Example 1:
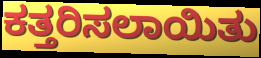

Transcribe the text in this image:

ಕತ್ತರಿಸಲಾಯಿತು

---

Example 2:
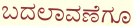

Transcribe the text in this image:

ಬದಲಾವಣೆಗೂ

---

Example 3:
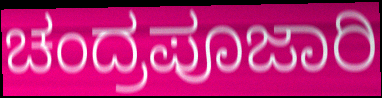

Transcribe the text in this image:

ಚಂದ್ರಪೂಜಾರಿ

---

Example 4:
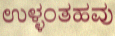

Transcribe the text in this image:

ಉಳ್ಳಂತಹವು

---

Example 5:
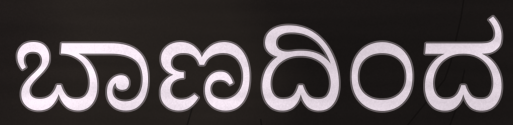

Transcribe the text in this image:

ಬಾಣದಿಂದ